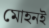
মোহনই